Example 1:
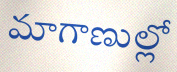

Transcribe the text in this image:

మాగాణుల్లో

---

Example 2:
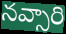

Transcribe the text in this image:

నవ్సారి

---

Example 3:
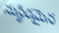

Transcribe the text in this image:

సుస్థిరమైన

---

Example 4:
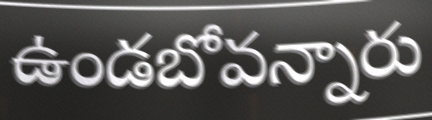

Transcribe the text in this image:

ఉండబోవన్నారు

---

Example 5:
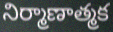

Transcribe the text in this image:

నిర్మాణాత్మక